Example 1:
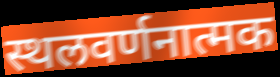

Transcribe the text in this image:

स्थलवर्णनात्मक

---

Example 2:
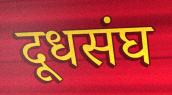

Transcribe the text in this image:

दूधसंघ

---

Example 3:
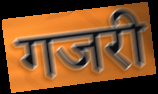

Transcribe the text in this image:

गजरी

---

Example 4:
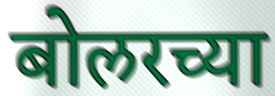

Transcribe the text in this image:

बोलरच्या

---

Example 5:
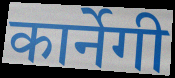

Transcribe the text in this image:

कार्नेगी